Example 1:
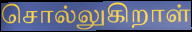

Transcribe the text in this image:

சொல்லுகிறாள்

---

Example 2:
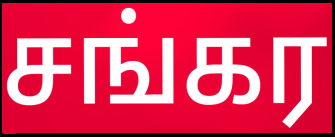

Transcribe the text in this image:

சங்கர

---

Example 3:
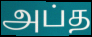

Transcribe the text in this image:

அப்த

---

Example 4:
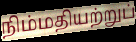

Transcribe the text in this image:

நிம்மதியற்றுப்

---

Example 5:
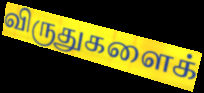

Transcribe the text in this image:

விருதுகளைக்